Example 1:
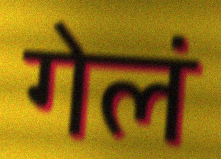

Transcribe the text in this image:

गेलं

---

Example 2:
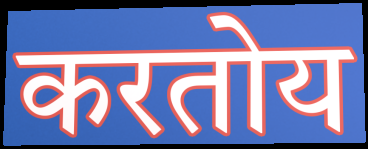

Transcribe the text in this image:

करतोय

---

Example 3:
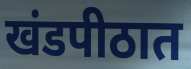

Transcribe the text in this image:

खंडपीठात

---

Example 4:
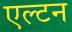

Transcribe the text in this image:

एल्टन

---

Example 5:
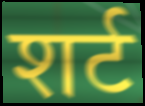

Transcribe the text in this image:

शर्ट